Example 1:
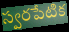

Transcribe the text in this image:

స్వరపేటిక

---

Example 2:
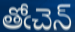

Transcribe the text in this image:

తోఁచెన్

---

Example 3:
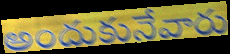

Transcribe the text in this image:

అందుకునేవారు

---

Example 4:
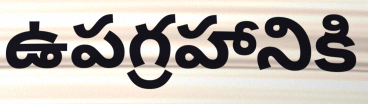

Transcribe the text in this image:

ఉపగ్రహానికి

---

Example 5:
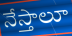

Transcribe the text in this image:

నేస్తాలూ